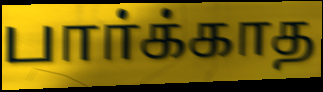
பார்க்காத